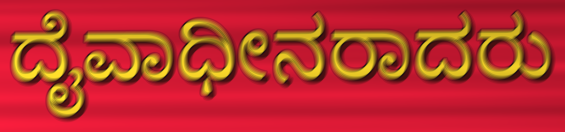
ದೈವಾಧೀನರಾದರು